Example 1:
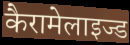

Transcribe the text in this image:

कैरामेलाइज्ड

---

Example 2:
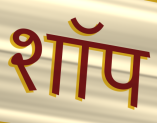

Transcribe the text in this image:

शॉप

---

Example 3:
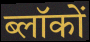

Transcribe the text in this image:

ब्लॉकों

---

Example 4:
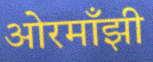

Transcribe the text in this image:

ओरमाँझी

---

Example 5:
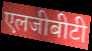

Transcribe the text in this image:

एलजीबीटी